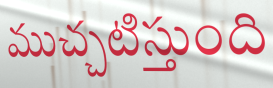
ముచ్చటిస్తుంది